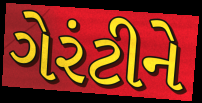
ગેરંટીને